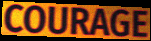
COURAGE